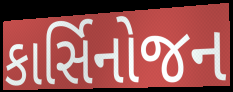
કાર્સિનોજન